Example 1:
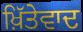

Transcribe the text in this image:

ਖ਼ਿੱਤੇਵਾਦ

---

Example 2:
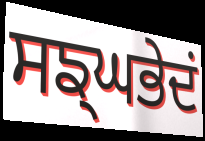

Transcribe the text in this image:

ਸਙ੍ਘਭੇਦਂ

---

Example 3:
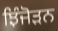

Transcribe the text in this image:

ਝਿੰਜੋੜਨ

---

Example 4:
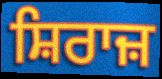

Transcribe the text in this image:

ਸ਼ਿਰਾਜ਼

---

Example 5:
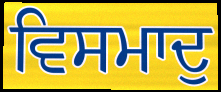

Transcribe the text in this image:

ਵਿਸਮਾਦੁ